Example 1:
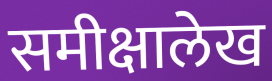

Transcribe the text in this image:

समीक्षालेख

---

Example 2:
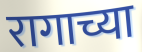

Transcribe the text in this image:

रागाच्या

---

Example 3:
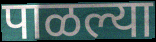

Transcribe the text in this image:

पाळल्या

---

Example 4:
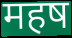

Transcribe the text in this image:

महष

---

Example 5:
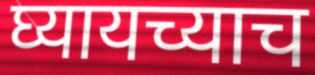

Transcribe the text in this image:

घ्यायच्याच